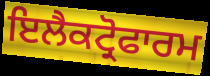
ਇਲੈਕਟ੍ਰੋਫਾਰਮ